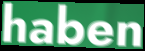
haben